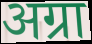
अग्रा